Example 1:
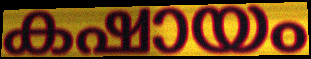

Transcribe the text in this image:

കഷായം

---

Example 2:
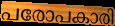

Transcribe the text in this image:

പരോപകാരി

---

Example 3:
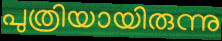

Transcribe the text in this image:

പുത്രിയായിരുന്നു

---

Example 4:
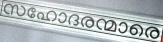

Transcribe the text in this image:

സഹോദരന്മാരെ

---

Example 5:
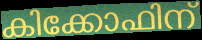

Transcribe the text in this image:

കിക്കോഫിന്